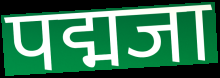
पद्मजा